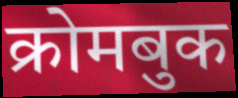
क्रोमबुक